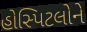
હોસ્પિટલોને